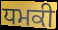
ਧਮਕੀ